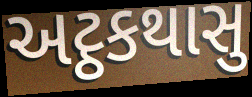
અટ્ઠકથાસુ